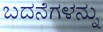
ಬದನೆಗಳನ್ನು